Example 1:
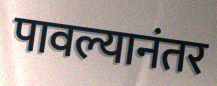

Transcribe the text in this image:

पावल्यानंतर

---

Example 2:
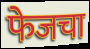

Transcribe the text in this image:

फेजचा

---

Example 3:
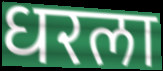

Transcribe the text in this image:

धरला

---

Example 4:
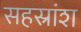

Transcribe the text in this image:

सहस्रांश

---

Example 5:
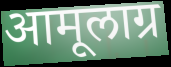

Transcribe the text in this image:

आमूलाग्र